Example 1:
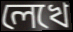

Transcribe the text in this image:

লেখে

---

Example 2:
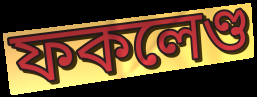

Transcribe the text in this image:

ফকলেণ্ড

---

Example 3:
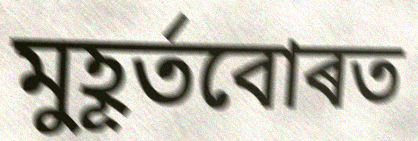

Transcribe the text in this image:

মুহূৰ্তবোৰত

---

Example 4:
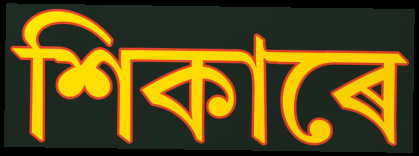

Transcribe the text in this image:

শিকাৰে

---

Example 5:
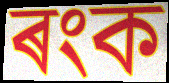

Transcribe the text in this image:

ৰংক